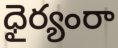
ధైర్యంరా